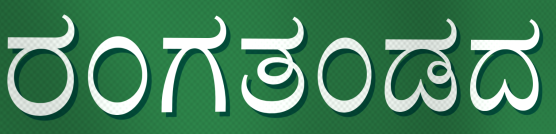
ರಂಗತಂಡದ